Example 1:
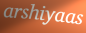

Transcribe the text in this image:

arshiyaas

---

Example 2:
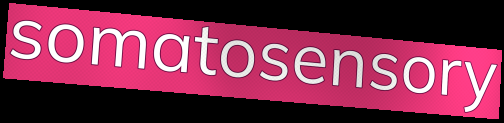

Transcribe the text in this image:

somatosensory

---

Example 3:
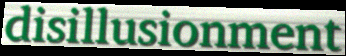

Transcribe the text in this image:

disillusionment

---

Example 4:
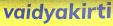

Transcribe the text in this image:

vaidyakirti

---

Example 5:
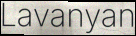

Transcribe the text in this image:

Lavanyan